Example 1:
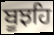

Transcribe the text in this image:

ਬੂਝਹਿ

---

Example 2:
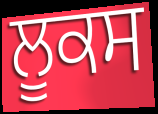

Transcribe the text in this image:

ਲੂਕਸ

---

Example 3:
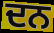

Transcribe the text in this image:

ਦਨ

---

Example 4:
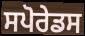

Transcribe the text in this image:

ਸਪੋਰੇਡਸ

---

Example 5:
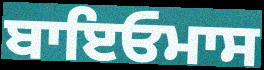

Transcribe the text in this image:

ਬਾਇਓਮਾਸ